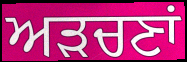
ਅੜਚਣਾਂ